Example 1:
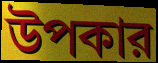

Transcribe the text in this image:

উপকার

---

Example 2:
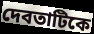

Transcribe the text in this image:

দেবতাটিকে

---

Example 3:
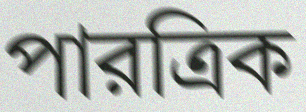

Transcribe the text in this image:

পারত্রিক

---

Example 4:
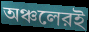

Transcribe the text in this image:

অঞ্চলেরই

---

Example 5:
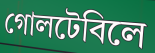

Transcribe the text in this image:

গোলটেবিলে